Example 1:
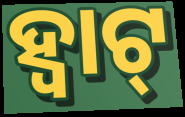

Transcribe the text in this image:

ହ୍ବାଟ୍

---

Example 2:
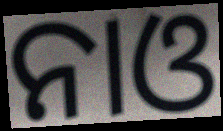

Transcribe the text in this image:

ନାଓ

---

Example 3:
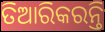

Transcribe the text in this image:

ତିଆରିକରନ୍ତି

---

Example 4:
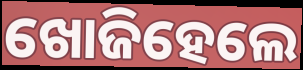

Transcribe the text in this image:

ଖୋଜିହେଲେ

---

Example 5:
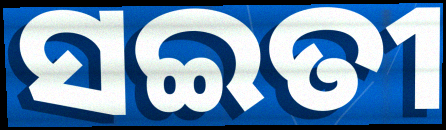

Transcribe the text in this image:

ସଇତୀ